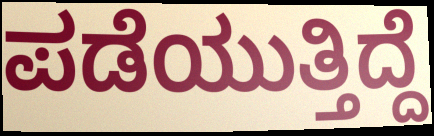
ಪಡೆಯುತ್ತಿದ್ದೆ